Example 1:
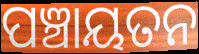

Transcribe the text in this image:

ପଞ୍ଚାୟତନ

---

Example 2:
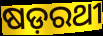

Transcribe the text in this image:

ଷଡ଼ରଥୀ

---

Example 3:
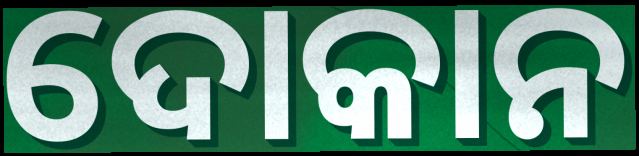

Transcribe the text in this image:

ଦୋକାନ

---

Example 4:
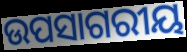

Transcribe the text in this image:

ଉପସାଗରୀୟ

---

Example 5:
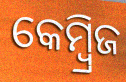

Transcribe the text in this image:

କେମ୍ବ୍ରିଜ